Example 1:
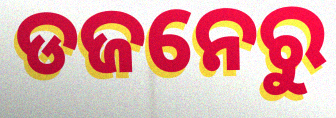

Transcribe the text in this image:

ଡଜନେରୁ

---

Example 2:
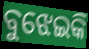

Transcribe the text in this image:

ବୁଝେଇକି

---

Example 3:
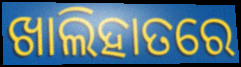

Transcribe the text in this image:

ଖାଲିହାତରେ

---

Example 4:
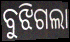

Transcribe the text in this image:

ବୁଝିଗଲା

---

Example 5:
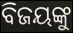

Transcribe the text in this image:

ବିଜୟଙ୍କୁ